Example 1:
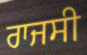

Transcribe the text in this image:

ਰਾਜਸੀ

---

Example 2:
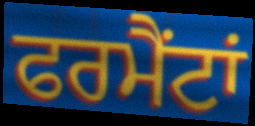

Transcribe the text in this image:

ਫਰਮੈਂਟਾਂ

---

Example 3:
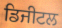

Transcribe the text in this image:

ਡਿਜੀਟਲ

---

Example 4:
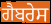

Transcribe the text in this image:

ਗੈਬਰੇਸ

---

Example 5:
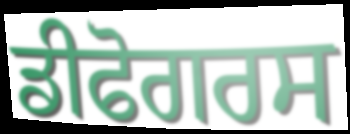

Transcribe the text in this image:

ਡੀਫੋਗਰਸ